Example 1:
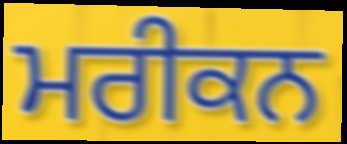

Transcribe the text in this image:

ਮਰੀਕਨ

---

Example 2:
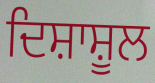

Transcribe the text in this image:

ਦਿਸ਼ਾਸ਼ੂਲ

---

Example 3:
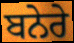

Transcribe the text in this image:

ਬਨੇਰੇ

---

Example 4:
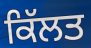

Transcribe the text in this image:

ਕਿੱਲਤ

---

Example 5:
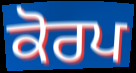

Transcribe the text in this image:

ਕੋਰਪ